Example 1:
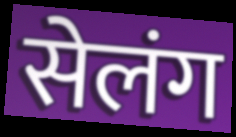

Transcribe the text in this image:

सेलंग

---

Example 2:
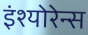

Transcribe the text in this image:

इंश्योरेन्स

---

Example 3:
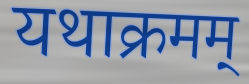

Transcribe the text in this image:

यथाक्रमम्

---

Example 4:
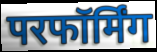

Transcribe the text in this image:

परफॉर्मिंग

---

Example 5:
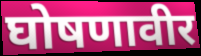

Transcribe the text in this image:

घोषणावीर